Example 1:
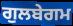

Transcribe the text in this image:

ਗੁਲਬੇਗਮ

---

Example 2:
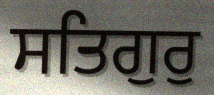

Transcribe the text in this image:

ਸਤਿਗੁਰੁ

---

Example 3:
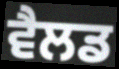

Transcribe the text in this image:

ਵੈਲਡ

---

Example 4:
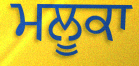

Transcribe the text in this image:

ਮਲੂਕਾ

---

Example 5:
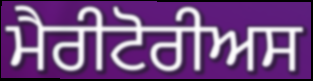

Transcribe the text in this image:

ਮੈਰੀਟੋਰੀਅਸ